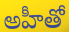
అహీతో